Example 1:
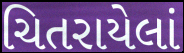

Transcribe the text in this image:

ચિતરાયેલાં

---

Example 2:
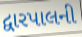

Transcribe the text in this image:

દ્વારપાલની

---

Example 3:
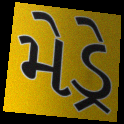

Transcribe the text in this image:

મેડ્રે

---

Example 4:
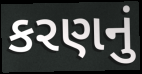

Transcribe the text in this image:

કરણનું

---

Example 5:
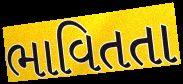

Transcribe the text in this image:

ભાવિતતા